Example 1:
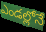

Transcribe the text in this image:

ఎండల్లోనే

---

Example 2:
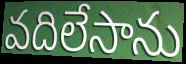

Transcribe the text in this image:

వదిలేసాను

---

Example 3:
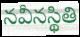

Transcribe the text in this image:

నవీనస్థితి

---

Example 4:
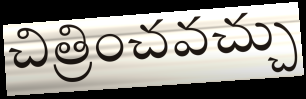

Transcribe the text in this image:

చిత్రించవచ్చు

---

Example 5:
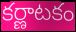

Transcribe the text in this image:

కర్ణాటకం